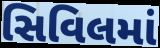
સિવિલમાં